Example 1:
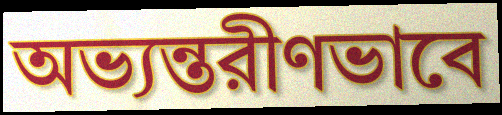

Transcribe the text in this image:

অভ্যন্তরীণভাবে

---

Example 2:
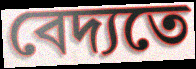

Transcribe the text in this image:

বেদ্যতে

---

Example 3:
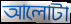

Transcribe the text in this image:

আলোটা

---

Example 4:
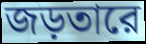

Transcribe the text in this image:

জড়তারে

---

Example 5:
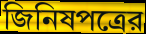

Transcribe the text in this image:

জিনিষপত্রের